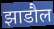
झाडौल